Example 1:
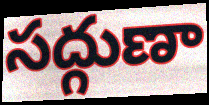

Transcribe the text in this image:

సద్గుణా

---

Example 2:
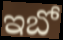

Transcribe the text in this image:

ఇబో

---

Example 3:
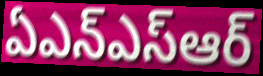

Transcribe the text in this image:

ఏఎన్ఎస్ఆర్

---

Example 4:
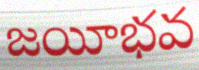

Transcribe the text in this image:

జయీభవ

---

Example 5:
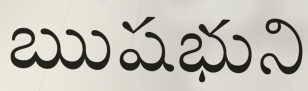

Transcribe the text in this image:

ఋషభుని